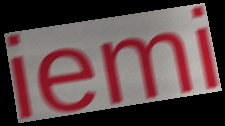
iemi